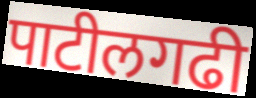
पाटीलगढी